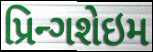
પ્રિન્ગશેઇમ